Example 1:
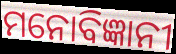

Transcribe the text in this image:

ମନୋବିଜ୍ଞାନୀ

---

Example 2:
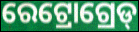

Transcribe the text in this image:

ରେଟ୍ରୋଗ୍ରେଡ୍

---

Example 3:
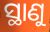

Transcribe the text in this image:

ସ୍ଥାଣୁ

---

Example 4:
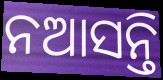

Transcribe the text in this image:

ନଆସନ୍ତି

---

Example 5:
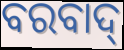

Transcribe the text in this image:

ବରବାଦ୍